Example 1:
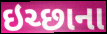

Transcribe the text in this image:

ઇચ્છાના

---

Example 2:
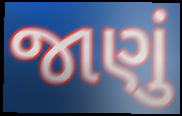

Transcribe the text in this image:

જાણું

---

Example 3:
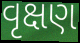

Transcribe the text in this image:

વૃક્ષણ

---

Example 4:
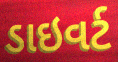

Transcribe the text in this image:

ડાઇવર્ટ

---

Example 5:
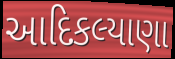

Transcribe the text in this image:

આદિકલ્યાણા